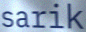
sarik